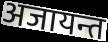
अजायन्त